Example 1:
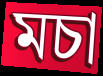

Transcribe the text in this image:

মচা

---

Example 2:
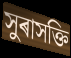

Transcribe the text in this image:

সুৰাসক্তি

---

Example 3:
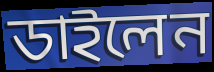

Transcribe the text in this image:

ডাইলেন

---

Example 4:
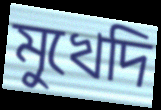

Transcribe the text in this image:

মুখেদি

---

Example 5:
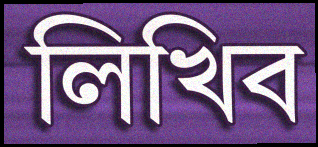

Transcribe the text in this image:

লিখিব